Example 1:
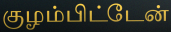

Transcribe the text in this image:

குழம்பிட்டேன்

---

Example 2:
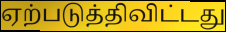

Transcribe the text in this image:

ஏற்படுத்திவிட்டது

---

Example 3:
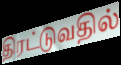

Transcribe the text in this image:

திரட்டுவதில்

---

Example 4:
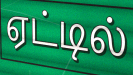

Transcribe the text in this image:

ஏட்டில்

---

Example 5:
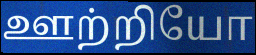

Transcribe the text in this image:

ஊற்றியோ